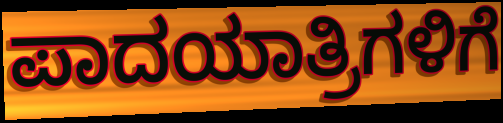
ಪಾದಯಾತ್ರಿಗಳಿಗೆ